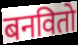
बनवितो